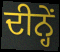
ਦੀਨ੍ਹੇਂ